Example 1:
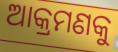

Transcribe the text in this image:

ଆକ୍ରମଣକୁ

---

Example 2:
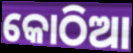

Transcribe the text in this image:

କୋଠିଆ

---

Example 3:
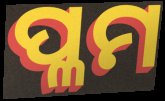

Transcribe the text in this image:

ପ୍ଳମ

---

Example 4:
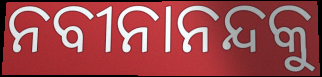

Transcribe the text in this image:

ନବୀନାନନ୍ଦକୁ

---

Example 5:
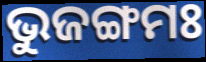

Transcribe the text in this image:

ଭୁଜଙ୍ଗମଃ